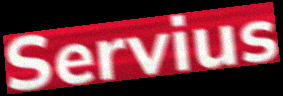
Servius